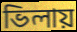
ভিলায়